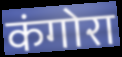
कंगोरा